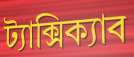
ট্যাক্সিক্যাব